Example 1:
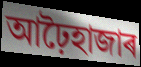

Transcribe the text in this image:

আঢ়ৈহাজাৰ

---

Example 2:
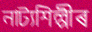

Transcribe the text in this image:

নাট্যশিল্পীৰ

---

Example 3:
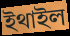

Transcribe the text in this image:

ইথাইল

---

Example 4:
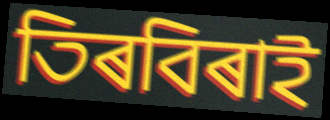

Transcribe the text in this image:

তিৰবিৰাই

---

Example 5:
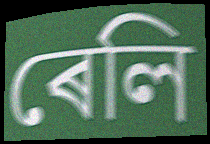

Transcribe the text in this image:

ৰেলি